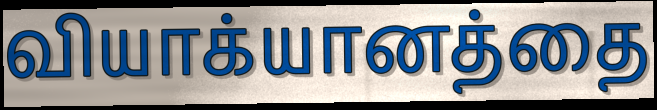
வியாக்யானத்தை